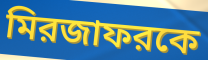
মিরজাফরকে